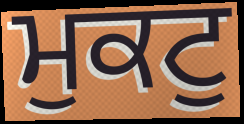
ਮੁਕਟੁ